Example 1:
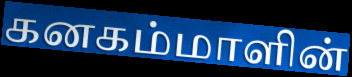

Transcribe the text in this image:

கனகம்மாளின்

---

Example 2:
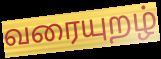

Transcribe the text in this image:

வரையுறழ்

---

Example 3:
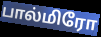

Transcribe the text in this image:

பால்மிரோ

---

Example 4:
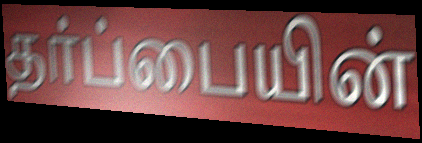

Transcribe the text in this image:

தர்ப்பையின்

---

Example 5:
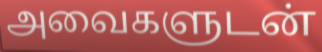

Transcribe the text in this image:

அவைகளுடன்